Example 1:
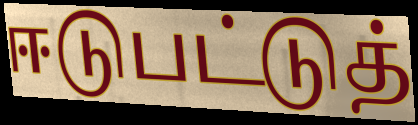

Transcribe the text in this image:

ஈடுபட்டுத்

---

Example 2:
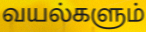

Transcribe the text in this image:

வயல்களும்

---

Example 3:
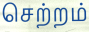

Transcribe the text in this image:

செற்றம்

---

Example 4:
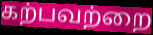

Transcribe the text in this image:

கற்பவற்றை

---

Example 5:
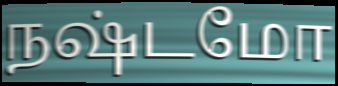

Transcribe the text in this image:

நஷ்டமோ